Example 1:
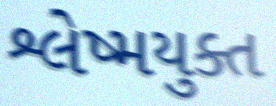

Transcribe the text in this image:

શ્લેષ્મયુક્ત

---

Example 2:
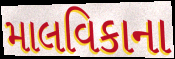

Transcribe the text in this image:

માલવિકાના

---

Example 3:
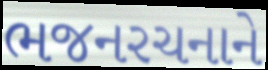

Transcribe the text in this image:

ભજનરચનાને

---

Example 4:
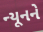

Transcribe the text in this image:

ન્યૂનને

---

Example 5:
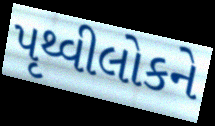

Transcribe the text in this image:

પૃથ્વીલોકને